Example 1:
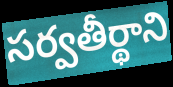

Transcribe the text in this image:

సర్వతీర్థాని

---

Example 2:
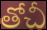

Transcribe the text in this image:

తోచీ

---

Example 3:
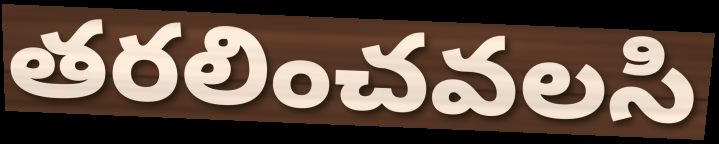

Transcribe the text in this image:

తరలించవలసి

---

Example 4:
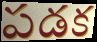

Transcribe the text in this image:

పడక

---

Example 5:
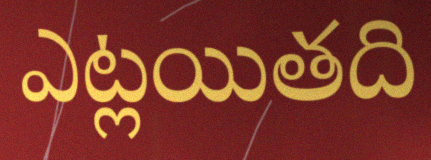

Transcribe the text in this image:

ఎట్లయితది